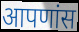
आपणांस